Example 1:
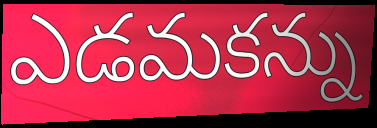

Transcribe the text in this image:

ఎడమకన్ను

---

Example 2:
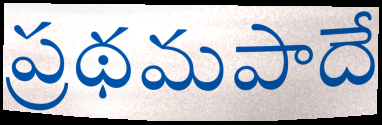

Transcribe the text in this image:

ప్రథమపాదే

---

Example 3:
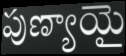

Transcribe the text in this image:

పుణ్యాయై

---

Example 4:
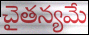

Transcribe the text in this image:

చైతన్యమే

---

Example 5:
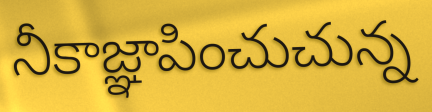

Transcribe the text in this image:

నీకాజ్ఞాపించుచున్న